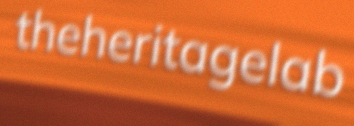
theheritagelab